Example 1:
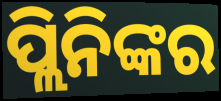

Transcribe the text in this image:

ପ୍ଲିନିଙ୍କର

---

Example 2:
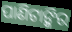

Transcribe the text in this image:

ପାଣିଟାଙ୍କିର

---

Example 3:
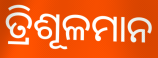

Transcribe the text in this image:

ତ୍ରିଶୂଳମାନ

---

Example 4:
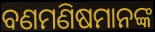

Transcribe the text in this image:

ବଣମଣିଷମାନଙ୍କ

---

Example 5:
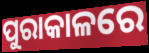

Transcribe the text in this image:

ପୁରାକାଳରେ